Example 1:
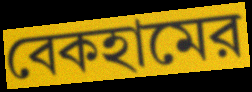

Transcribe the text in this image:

বেকহামের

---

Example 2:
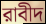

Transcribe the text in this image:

রাবীদ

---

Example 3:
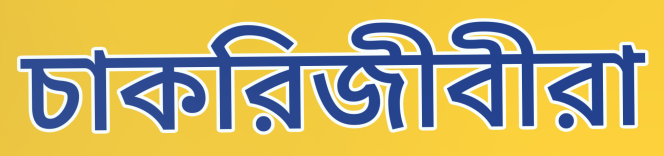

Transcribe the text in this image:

চাকরিজীবীরা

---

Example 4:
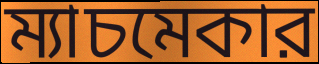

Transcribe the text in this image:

ম্যাচমেকার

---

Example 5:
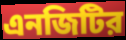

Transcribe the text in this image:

এনজিটির